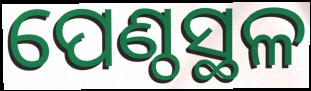
ପେଣ୍ଠସ୍ଥଳ